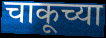
चाकूच्या